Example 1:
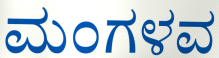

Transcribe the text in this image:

ಮಂಗಳವ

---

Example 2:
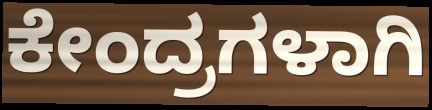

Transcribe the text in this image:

ಕೇಂದ್ರಗಳಾಗಿ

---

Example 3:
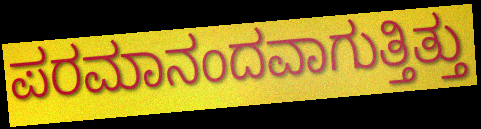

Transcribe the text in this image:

ಪರಮಾನಂದವಾಗುತ್ತಿತ್ತು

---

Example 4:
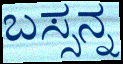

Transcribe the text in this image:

ಬಸ್ಸನ್ನ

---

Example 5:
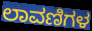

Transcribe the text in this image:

ಲಾವಣಿಗಳ